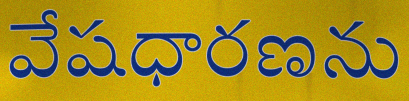
వేషధారణను